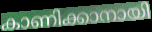
കാണിക്കാനായി